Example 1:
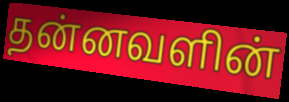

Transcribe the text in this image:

தன்னவளின்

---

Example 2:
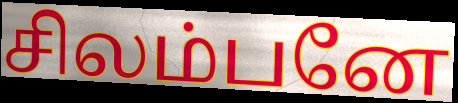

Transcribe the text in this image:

சிலம்பனே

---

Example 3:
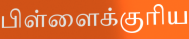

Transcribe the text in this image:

பிள்ளைக்குரிய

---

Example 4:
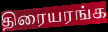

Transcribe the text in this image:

திரையரங்க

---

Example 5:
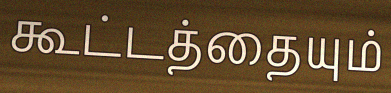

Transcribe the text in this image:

கூட்டத்தையும்